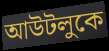
আউটলুকে